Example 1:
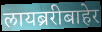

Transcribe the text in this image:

लायब्ररीबाहेर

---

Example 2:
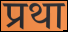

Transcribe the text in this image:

प्रथा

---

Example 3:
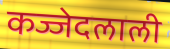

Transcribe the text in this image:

कज्जेदलाली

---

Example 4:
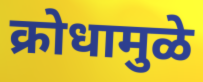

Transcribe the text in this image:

क्रोधामुळे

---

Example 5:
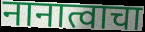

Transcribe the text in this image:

नानात्वाचा